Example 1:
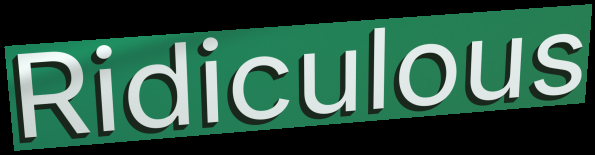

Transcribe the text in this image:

Ridiculous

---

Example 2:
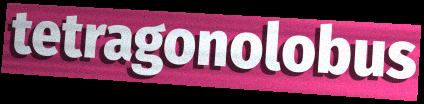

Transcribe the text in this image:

tetragonolobus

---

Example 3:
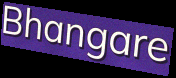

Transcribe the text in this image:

Bhangare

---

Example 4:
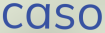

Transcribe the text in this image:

caso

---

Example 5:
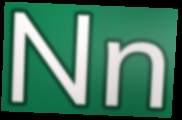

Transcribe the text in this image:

Nn